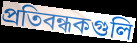
প্রতিবন্ধকগুলি